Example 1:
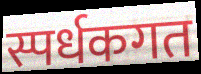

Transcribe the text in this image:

स्पर्धकगत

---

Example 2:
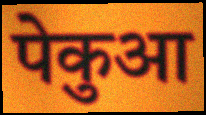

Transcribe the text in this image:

पेकुआ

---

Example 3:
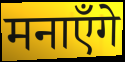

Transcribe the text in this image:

मनाएँगे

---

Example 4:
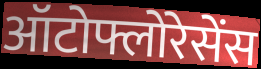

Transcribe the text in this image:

ऑटोफ्लोरेसेंस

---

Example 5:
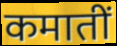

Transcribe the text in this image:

कमातीं